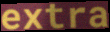
extra